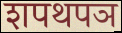
शपथपञ